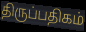
திருப்பதிகம்